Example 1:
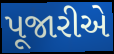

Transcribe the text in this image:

પૂજારીએ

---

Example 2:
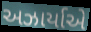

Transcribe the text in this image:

અઝાર્યાએ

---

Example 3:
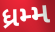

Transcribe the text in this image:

ધ્રમ્મ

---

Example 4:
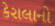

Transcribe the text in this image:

કેરાલાનો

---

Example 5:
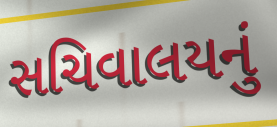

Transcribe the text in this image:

સચિવાલયનું